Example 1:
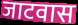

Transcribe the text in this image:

जाटवास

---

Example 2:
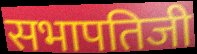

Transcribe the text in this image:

सभापतिजी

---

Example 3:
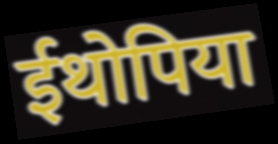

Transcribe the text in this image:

ईथोपिया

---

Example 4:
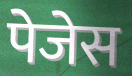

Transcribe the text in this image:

पेजेस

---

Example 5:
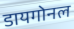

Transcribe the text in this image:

डायगोनल